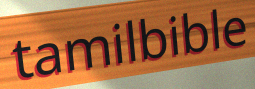
tamilbible